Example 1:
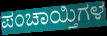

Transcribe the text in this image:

ಪಂಚಾಯ್ತಿಗಳ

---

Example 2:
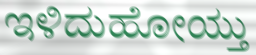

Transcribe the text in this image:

ಇಳಿದುಹೋಯ್ತು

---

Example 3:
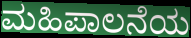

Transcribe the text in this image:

ಮಹಿಪಾಲನೆಯ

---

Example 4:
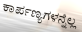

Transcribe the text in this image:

ಕಾರ್ಪಣ್ಯಗಳನ್ನೆಲ್ಲ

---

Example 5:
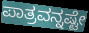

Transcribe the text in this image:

ಪಾತ್ರವನ್ನಷ್ಟೇ